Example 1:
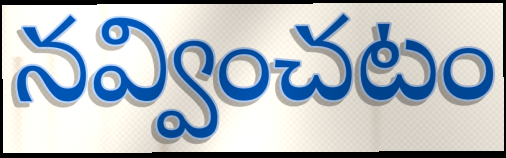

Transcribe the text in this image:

నవ్వించటం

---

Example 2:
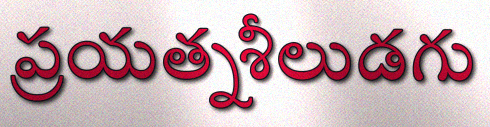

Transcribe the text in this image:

ప్రయత్నశీలుడగు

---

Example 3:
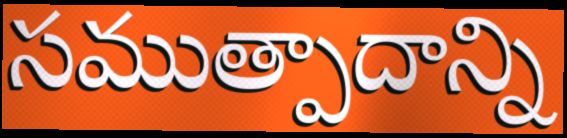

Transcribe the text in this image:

సముత్పాదాన్ని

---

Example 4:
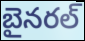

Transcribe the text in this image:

బైనరల్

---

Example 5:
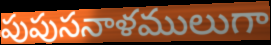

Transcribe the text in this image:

పుపుసనాళములుగా